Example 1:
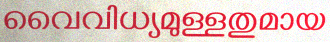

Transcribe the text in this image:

വൈവിധ്യമുള്ളതുമായ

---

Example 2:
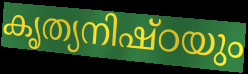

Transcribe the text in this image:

കൃത്യനിഷ്ഠയും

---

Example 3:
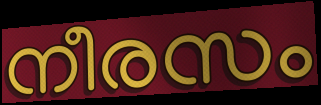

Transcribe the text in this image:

നീരസം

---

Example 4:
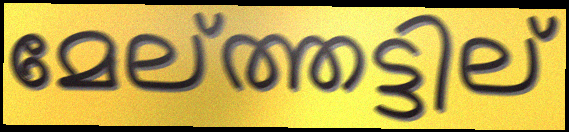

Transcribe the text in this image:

മേല്ത്തട്ടില്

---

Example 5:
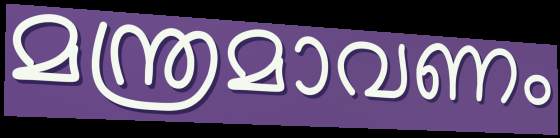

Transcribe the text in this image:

മന്ത്രമാവണം